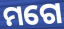
ମଗେ